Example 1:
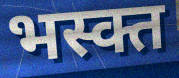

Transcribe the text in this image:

भस्क्त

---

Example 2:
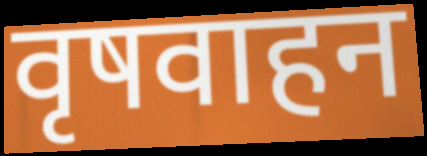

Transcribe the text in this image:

वृषवाहन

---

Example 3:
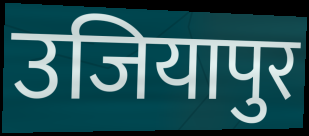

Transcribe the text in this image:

उजियापुर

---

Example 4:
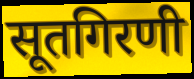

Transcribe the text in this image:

सूतगिरणी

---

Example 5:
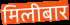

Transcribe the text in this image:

मिलीबार